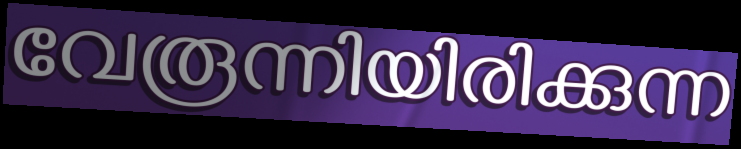
വേരൂന്നിയിരിക്കുന്ന